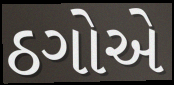
ઠગોએ